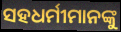
ସହଧର୍ମୀମାନଙ୍କୁ